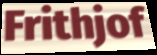
Frithjof